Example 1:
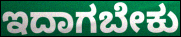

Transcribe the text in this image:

ಇದಾಗಬೇಕು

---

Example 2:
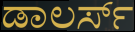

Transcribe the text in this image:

ಡಾಲರ್ಸ್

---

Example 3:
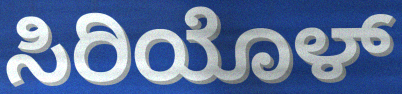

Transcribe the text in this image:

ಸಿರಿಯೊಳ್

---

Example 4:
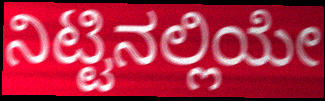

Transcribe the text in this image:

ನಿಟ್ಟಿನಲ್ಲಿಯೇ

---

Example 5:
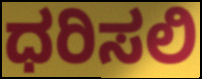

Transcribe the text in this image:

ಧರಿಸಲಿ